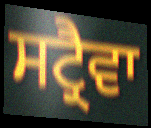
ਸਟ੍ਰੈਵਾ